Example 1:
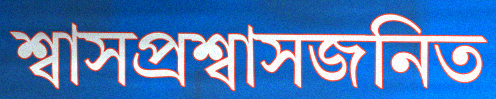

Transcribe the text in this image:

শ্বাসপ্রশ্বাসজনিত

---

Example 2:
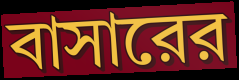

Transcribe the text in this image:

বাসারের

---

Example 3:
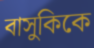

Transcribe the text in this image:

বাসুকিকে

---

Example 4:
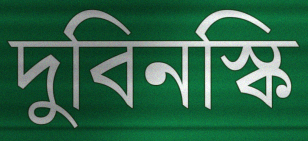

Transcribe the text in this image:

দুবিনস্কি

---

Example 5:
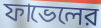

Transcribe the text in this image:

ফাভেলের